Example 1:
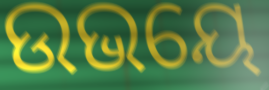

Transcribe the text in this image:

ଉଭୟେ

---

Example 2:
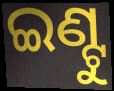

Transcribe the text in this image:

ଇଣ୍ଟୁ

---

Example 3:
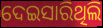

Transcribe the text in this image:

ଦେଇସାରିଥିଲି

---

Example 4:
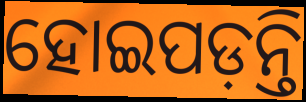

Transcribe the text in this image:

ହୋଇପଡ଼ନ୍ତି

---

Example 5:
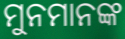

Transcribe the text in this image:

ମୁନମାନଙ୍କ